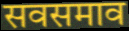
सवसमाव